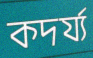
কদর্য্য